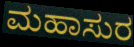
ಮಹಾಸುರ